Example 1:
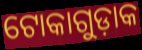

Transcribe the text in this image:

ଟୋକାଗୁଡ଼ାକ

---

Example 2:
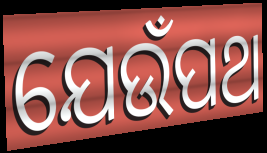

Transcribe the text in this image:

ଯେଉଁପଥ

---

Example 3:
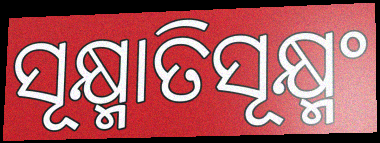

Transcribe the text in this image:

ସୂକ୍ଷ୍ମାତିସୂକ୍ଷ୍ମଂ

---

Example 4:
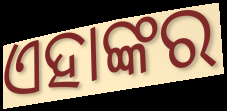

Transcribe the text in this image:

ଏହାଙ୍କର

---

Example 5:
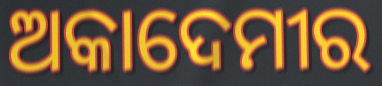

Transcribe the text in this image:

ଅକାଦେମୀର